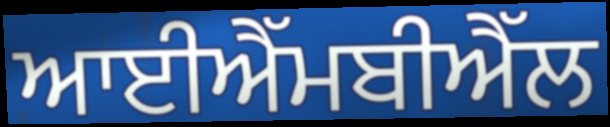
ਆਈਐੱਮਬੀਐੱਲ